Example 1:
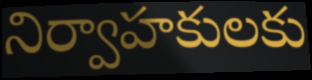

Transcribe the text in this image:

నిర్వాహకులకు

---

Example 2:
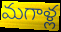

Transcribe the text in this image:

మగాళ్ల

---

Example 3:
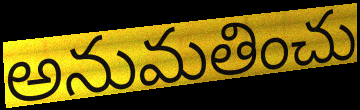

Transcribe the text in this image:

అనుమతించు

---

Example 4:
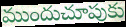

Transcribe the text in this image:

ముందుచూపుకు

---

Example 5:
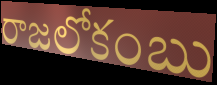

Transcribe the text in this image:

రాజలోకంబు